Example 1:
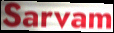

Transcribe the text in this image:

Sarvam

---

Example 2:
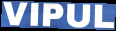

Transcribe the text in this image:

VIPUL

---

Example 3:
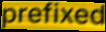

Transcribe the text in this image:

prefixed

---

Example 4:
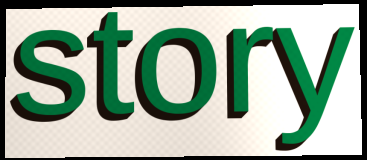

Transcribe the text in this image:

story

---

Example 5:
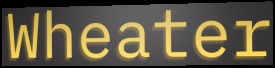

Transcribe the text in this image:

Wheater